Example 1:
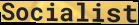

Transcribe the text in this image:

Socialist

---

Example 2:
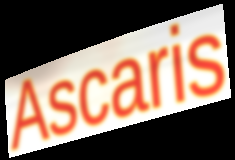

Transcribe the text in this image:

Ascaris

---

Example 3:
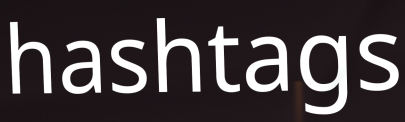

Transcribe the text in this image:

hashtags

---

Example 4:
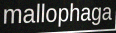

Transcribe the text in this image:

mallophaga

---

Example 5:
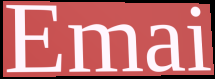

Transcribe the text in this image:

Emai